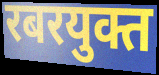
रबरयुक्त